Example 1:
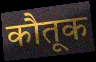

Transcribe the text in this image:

कौतूक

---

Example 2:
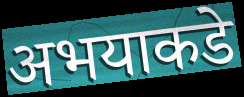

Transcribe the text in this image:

अभयाकडे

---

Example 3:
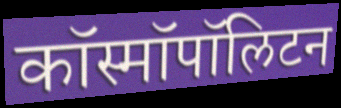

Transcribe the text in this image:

कॉस्मॉपॉलिटन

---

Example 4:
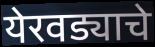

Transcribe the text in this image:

येरवड्याचे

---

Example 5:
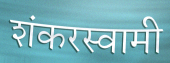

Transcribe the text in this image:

शंकरस्वामी